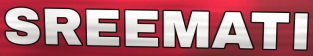
SREEMATI